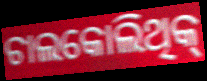
ଚାଲକୋଲିଥିକ୍